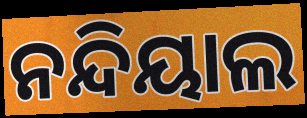
ନନ୍ଦିୟାଲ